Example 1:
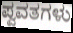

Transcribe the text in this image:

ಪ್ವವತಗಳು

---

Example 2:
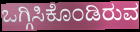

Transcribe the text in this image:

ಒಗ್ಗಿಸಿಕೊಂಡಿರುವ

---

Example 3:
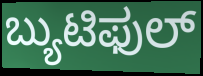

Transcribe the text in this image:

ಬ್ಯುಟಿಫುಲ್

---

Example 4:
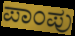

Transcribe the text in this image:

ಪಾಂಪು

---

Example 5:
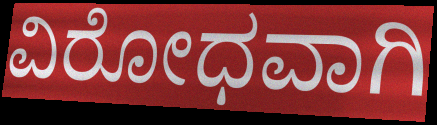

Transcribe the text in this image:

ವಿರೋಧವಾಗಿ